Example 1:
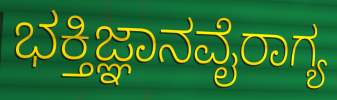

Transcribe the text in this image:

ಭಕ್ತಿಜ್ಞಾನವೈರಾಗ್ಯ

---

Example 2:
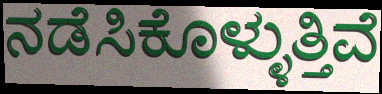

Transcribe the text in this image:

ನಡೆಸಿಕೊಳ್ಳುತ್ತಿವೆ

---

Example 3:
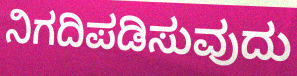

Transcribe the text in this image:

ನಿಗದಿಪಡಿಸುವುದು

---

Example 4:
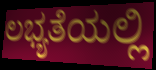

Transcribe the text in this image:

ಲಭ್ಯತೆಯಲ್ಲಿ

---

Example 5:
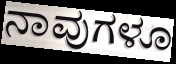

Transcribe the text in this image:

ನಾವುಗಳೂ